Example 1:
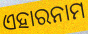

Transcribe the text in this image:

ଏହାରନାମ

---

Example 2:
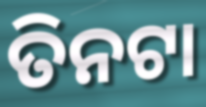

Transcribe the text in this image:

ତିନଟା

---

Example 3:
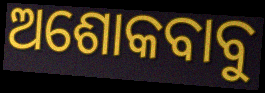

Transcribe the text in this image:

ଅଶୋକବାବୁ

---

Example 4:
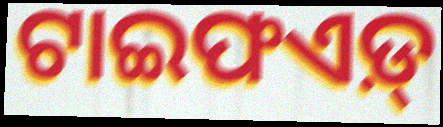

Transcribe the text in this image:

ଟାଇଫଏଡ଼୍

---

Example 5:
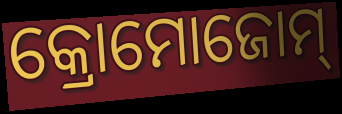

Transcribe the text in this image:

କ୍ରୋମୋଜୋମ୍